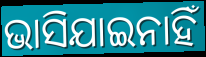
ଭାସିଯାଇନାହିଁ